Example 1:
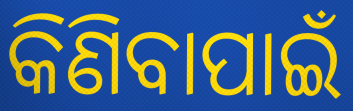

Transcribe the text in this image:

କିଣିବାପାଇଁ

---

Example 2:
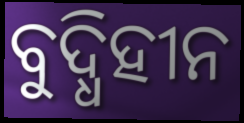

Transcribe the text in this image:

ବୁଦ୍ଧିହୀନ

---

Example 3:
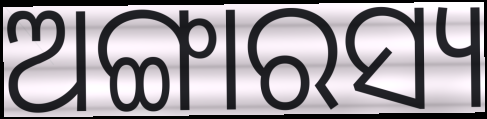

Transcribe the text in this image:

ଅଙ୍ଗାରସ୍ୟ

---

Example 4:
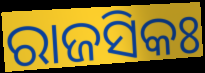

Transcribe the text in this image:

ରାଜସିକଃ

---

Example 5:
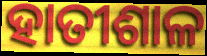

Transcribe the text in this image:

ହାତୀଶାଳ